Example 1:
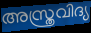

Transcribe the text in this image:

അസ്ത്രവിദ്യ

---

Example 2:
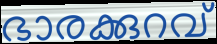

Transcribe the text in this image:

ഭാരക്കുറവ്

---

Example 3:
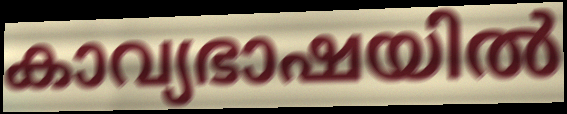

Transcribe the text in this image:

കാവ്യഭാഷയിൽ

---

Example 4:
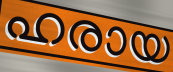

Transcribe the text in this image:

ഹരായ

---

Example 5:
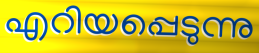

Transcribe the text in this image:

എറിയപ്പെടുന്നു